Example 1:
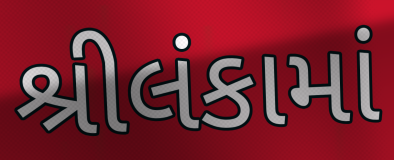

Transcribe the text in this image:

શ્રીલંકામાં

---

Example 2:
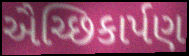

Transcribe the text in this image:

ઐચ્છિકાર્પણ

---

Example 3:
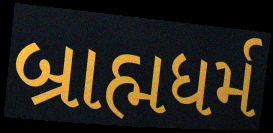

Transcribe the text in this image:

બ્રાહ્મધર્મ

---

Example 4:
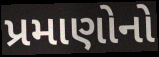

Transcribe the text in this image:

પ્રમાણોનો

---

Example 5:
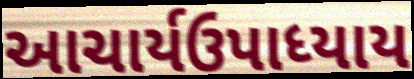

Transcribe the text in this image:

આચાર્યઉપાધ્યાય